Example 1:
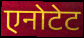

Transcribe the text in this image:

एनोटेट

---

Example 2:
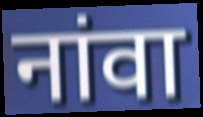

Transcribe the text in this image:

नांवा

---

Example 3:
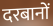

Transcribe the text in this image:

दरबानों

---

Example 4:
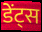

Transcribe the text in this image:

डेंट्स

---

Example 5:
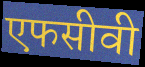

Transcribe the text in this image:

एफसीवी